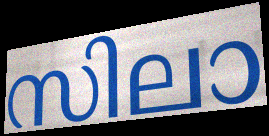
സിലാ